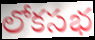
లోకసభ